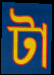
টা